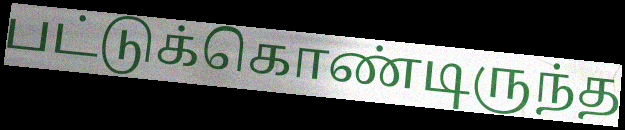
பட்டுக்கொண்டிருந்த